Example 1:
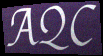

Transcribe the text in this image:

AQC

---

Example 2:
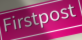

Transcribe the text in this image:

Firstpost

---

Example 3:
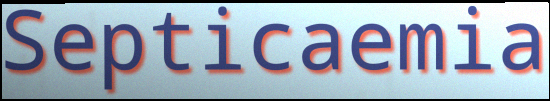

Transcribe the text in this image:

Septicaemia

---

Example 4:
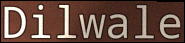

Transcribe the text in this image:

Dilwale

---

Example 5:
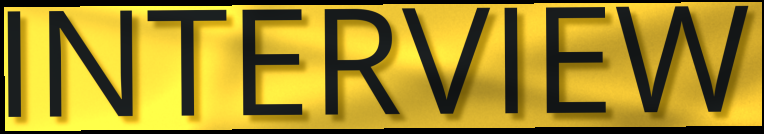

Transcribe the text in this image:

INTERVIEW